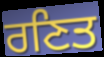
ਰਣਿਤ